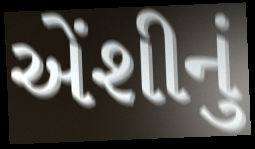
એંશીનું